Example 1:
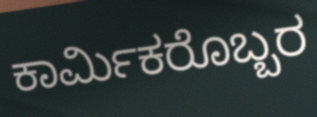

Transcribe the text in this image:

ಕಾರ್ಮಿಕರೊಬ್ಬರ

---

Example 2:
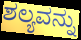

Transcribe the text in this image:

ಶಲ್ಯವನ್ನು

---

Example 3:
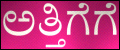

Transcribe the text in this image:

ಅತ್ತಿಗೆಗೆ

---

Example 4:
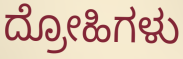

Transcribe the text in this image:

ದ್ರೋಹಿಗಳು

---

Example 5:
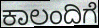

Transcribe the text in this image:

ಕಾಲಂದಿಗೆ